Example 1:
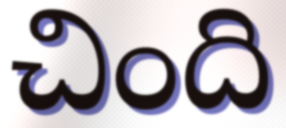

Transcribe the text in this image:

చింది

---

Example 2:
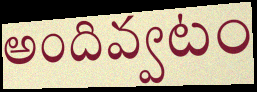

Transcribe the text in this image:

అందివ్వటం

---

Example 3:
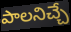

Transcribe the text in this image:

పాలనిచ్చే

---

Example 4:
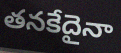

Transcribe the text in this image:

తనకేదైనా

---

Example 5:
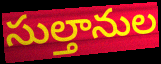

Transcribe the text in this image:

సుల్తానుల